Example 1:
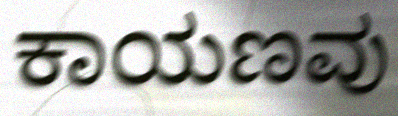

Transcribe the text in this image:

ಕಾಯಣವು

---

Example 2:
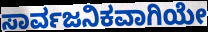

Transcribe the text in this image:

ಸಾರ್ವಜನಿಕವಾಗಿಯೇ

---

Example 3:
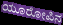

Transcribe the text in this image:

ಯೂರೋಪಿನ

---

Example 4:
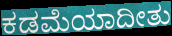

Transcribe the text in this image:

ಕಡಮೆಯಾದೀತು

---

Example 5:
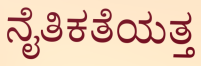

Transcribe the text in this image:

ನೈತಿಕತೆಯತ್ತ